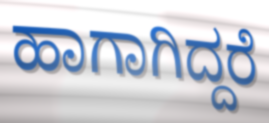
ಹಾಗಾಗಿದ್ದರೆ